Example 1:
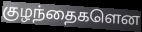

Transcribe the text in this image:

குழந்தைகளென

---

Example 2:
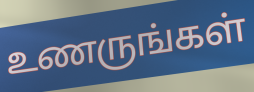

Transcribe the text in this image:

உணருங்கள்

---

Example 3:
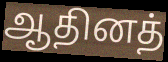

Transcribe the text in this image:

ஆதினத்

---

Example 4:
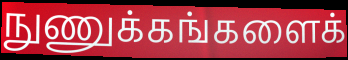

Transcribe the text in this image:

நுணுக்கங்களைக்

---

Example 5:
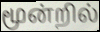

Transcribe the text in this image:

மூன்றில்